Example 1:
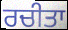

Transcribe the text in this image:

ਰਚੀਤਾ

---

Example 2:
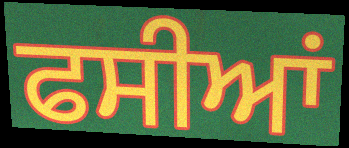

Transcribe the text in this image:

ਫਸੀਆਂ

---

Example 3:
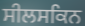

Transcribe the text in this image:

ਸੀਲਸਕਿਨ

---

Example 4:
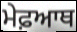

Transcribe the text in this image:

ਮੇਫ਼ਆਥ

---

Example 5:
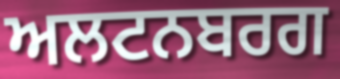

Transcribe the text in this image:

ਅਲਟਨਬਰਗ